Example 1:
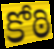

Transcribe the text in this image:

కోఠి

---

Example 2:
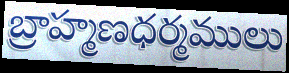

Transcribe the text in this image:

బ్రాహ్మణధర్మములు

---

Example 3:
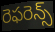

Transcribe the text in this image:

రెఫరెన్స్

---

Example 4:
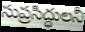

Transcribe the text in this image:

సుప్రసిద్ధులనీ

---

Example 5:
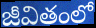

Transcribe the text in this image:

జీవితంలో